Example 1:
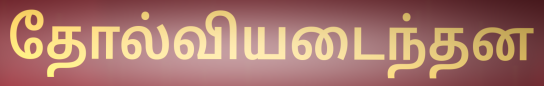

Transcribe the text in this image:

தோல்வியடைந்தன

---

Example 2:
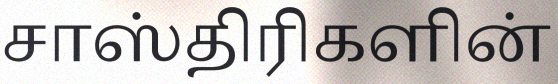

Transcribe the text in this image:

சாஸ்திரிகளின்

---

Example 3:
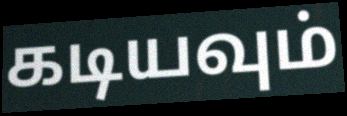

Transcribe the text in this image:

கடியவும்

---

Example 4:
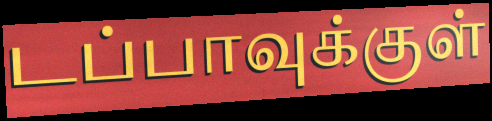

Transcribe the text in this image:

டப்பாவுக்குள்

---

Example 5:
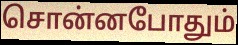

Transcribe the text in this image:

சொன்னபோதும்